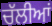
ਚੱਲੀਆਂ